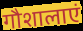
गौशालाएं